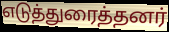
எடுத்துரைத்தனர்